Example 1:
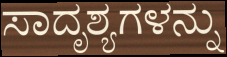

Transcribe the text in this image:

ಸಾದೃಶ್ಯಗಳನ್ನು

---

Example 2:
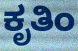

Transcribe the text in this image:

ಕೃತಿಂ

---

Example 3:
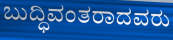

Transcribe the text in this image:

ಬುದ್ಧಿವಂತರಾದವರು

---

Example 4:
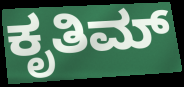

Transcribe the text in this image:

ಕೃತಿಮ್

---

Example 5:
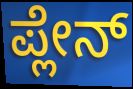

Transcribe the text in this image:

ಪ್ಲೇನ್